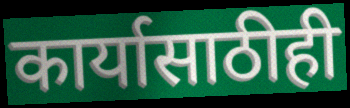
कार्यासाठीही